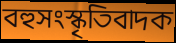
বহুসংস্কৃতিবাদক